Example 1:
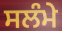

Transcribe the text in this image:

ਸਲੰਮੇ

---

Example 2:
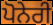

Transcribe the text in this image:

ਪੋਨੇਰੀ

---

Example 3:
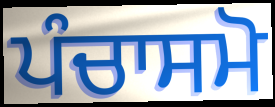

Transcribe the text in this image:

ਪੰਚਾਸਮੋ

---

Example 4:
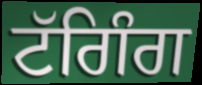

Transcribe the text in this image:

ਟੱਗਿੰਗ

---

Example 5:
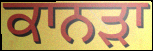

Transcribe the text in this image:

ਕਾਨੜਾ